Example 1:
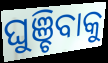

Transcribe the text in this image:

ଘୁଞ୍ଚିବାକୁ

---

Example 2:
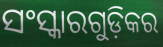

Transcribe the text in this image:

ସଂସ୍କାରଗୁଡ଼ିକର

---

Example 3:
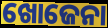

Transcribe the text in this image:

ଖୋଜେନା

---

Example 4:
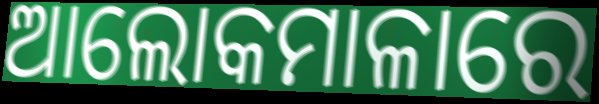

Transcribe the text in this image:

ଆଲୋକମାଳାରେ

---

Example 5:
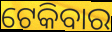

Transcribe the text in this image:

ଟେକିବାର